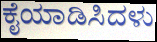
ಕೈಯಾಡಿಸಿದಳು